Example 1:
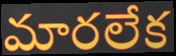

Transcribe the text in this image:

మారలేక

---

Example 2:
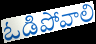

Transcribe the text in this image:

ఓడిపోవాలి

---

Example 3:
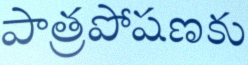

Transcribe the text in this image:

పాత్రపోషణకు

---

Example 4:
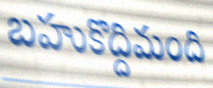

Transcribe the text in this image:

బహుకొద్దిమంది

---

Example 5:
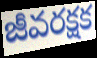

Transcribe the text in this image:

జీవరక్షక